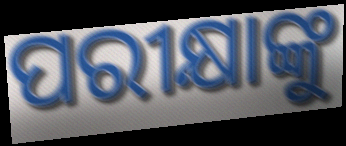
ପରୀକ୍ଷାଙ୍କୁ